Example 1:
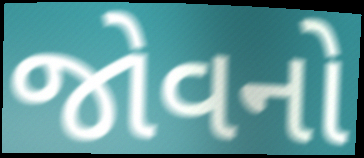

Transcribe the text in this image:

જોવનો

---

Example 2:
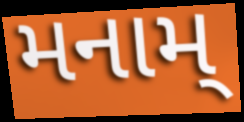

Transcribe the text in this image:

મનામ્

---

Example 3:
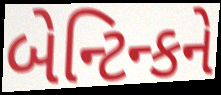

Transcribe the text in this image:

બેન્ટિન્કને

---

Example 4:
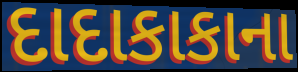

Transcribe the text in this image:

દાદાકાકાના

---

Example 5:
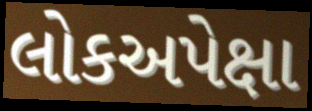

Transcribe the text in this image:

લોકઅપેક્ષા